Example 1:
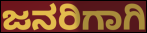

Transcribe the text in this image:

ಜನರಿಗಾಗಿ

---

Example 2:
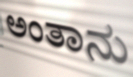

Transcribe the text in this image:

ಅಂತಾನು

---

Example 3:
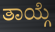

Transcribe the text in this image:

ತಾಯ್ಗೆ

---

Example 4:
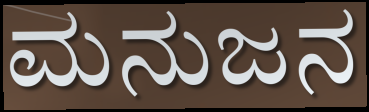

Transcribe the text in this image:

ಮನುಜನ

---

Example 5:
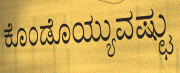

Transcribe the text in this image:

ಕೊಂಡೊಯ್ಯುವಷ್ಟು